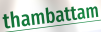
thambattam